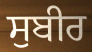
ਸੁਬੀਰ